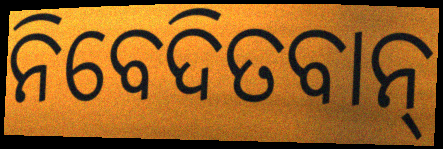
ନିବେଦିତବାନ୍